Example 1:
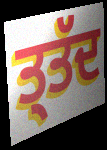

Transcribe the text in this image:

ਤ੍ਤੱਦ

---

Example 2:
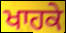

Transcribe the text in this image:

ਖਾਹਕੇ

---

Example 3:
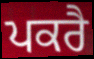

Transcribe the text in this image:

ਪਕਰੈ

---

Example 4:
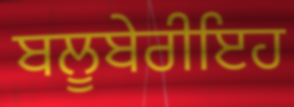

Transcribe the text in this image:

ਬਲੂਬੇਰੀਇਹ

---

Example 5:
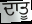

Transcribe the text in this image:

ਦਾਤੂ